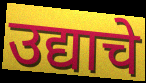
उद्याचे